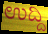
ಉದ್ದಿ